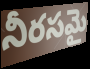
నీరసమై